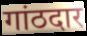
गांठदार